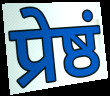
प्रेष्ठं